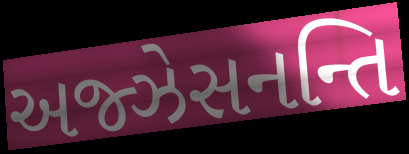
અજ્ઝેસનન્તિ